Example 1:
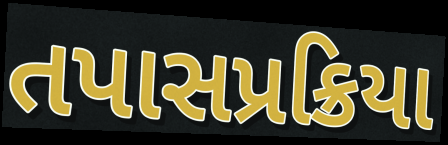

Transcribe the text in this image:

તપાસપ્રક્રિયા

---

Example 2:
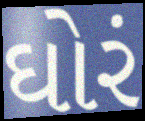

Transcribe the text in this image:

ઘોરં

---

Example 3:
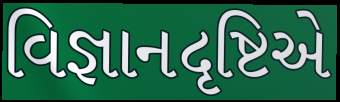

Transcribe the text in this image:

વિજ્ઞાનદૃષ્ટિએ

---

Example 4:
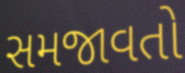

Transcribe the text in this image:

સમજાવતો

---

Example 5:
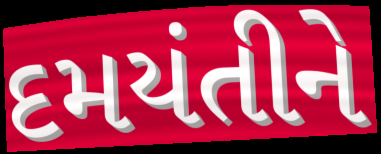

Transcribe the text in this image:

દમયંતીને